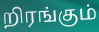
றிரங்கும்